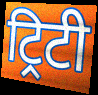
ट्रिटी